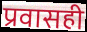
प्रवासही